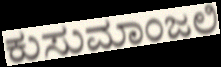
ಕುಸುಮಾಂಜಲಿ